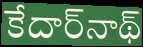
కేదార్‌నాథ్